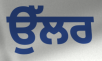
ਉੱਲਰ